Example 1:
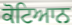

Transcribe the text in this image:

ਕੋਟਿਆਨ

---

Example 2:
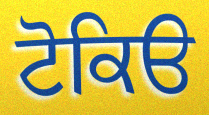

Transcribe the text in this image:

ਟੋਕਿੳ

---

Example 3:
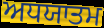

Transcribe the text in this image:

ਅਧਯਾਤਮ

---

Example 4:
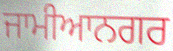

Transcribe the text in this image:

ਜਾਮੀਆਨਗਰ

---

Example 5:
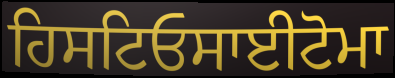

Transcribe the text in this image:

ਹਿਸਟਿਓਸਾਈਟੋਮਾ